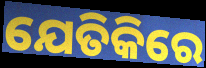
ଯେତିକିରେ